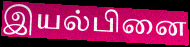
இயல்பினை